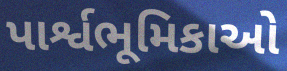
પાર્શ્વભૂમિકાઓ